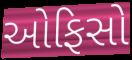
ઓફિસો